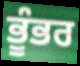
ਭੂੰਭਰ